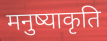
मनुष्याकृति